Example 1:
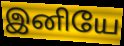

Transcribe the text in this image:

இனியே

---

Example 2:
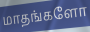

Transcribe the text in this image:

மாதங்களோ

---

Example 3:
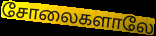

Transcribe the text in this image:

சோலைகளாலே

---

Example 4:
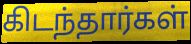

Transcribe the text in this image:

கிடந்தார்கள்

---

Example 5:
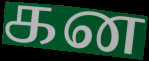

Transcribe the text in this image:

கன